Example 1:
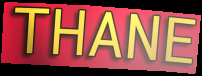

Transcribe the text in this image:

THANE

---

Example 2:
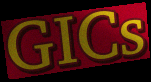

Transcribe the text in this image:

GICs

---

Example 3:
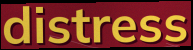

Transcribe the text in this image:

distress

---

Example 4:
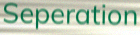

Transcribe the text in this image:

Seperation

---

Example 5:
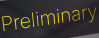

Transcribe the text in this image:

Preliminary